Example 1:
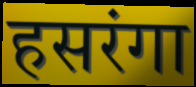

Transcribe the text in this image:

हसरंगा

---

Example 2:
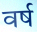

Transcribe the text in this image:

वर्ष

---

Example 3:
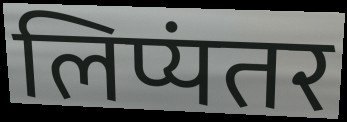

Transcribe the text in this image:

लिप्यंतर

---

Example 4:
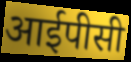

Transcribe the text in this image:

आईपीसी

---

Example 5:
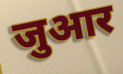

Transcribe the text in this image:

जुआर